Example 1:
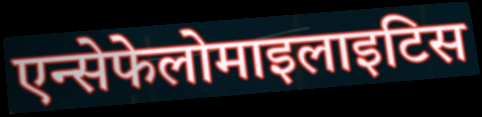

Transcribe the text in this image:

एन्सेफेलोमाइलाइटिस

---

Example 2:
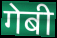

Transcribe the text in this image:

गेबी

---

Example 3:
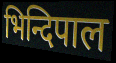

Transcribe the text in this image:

भिन्दिपाल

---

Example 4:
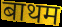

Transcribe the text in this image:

बाथम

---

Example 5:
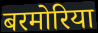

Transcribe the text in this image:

बरमोरिया